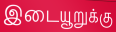
இடையூறுக்கு